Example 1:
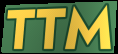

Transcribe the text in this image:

TTM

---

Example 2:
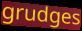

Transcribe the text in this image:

grudges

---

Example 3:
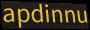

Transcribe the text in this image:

apdinnu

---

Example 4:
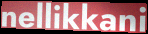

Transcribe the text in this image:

nellikkani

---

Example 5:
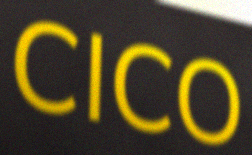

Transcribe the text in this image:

CICO